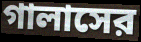
গালাসের